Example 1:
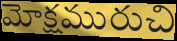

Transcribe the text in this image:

మోక్షమురుచి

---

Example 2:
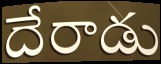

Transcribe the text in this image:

దేరాడు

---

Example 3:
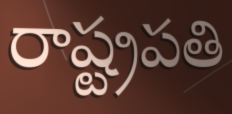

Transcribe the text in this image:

రాష్ట్రపతి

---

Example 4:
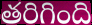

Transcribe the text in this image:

తరిగింది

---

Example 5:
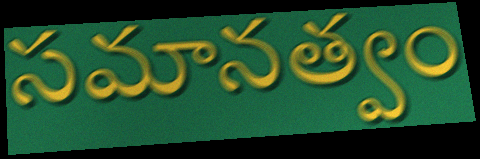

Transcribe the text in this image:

సమానత్వం